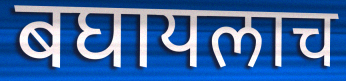
बघायलाच